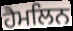
ਹੈਮਲਿਨ